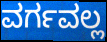
ವರ್ಗವಲ್ಲ